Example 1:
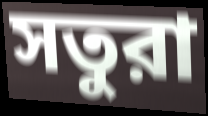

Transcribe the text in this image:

সতুরা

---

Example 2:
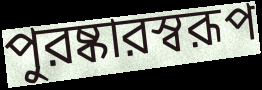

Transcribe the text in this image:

পুরষ্কারস্বরূপ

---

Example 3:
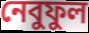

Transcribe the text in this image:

নেবুফুল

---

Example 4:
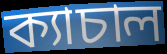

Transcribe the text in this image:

ক্যাচাল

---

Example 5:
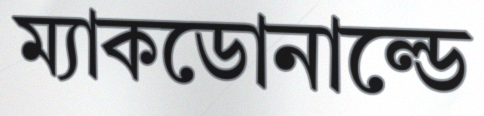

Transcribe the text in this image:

ম্যাকডোনাল্ডে